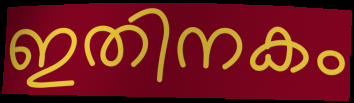
ഇതിനകം